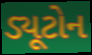
ડ્યૂટોન